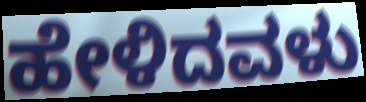
ಹೇಳಿದವಳು